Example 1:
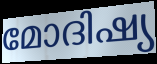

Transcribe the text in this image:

മോദിഷ്യ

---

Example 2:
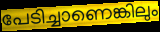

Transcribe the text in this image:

പേടിച്ചാണെങ്കിലും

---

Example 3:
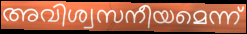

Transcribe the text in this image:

അവിശ്വസനീയമെന്ന്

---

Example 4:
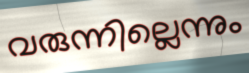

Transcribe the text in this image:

വരുന്നില്ലെന്നും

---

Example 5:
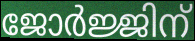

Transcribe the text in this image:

ജോർജ്ജിന്